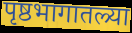
पृष्ठभागातल्या